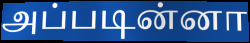
அப்படின்னா